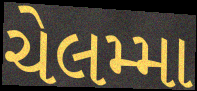
ચેલમ્મા